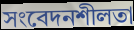
সংবেদনশীলতা